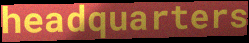
headquarters